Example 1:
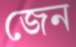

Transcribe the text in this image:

জেন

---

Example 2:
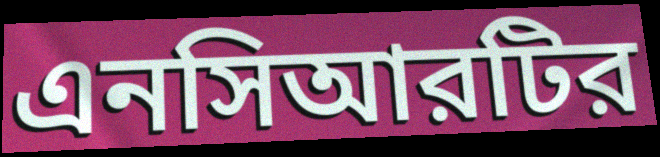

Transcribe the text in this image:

এনসিআরটির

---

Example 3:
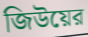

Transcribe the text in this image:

জিউয়ের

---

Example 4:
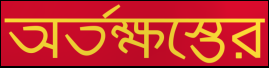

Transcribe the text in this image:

অর্তক্ষস্তের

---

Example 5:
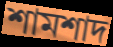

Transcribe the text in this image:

শামশাদ